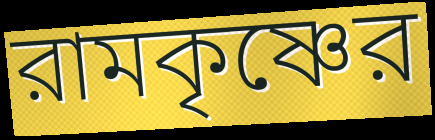
রামকৃষ্ণের